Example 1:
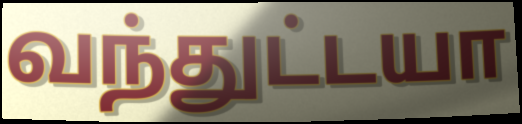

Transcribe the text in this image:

வந்துட்டயா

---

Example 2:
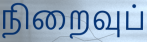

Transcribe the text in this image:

நிறைவுப்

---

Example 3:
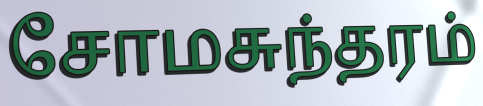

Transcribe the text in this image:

சோமசுந்தரம்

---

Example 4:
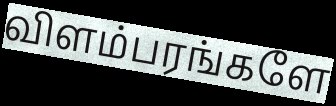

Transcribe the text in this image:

விளம்பரங்களே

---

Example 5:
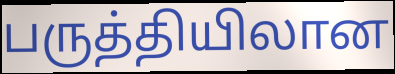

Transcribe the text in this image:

பருத்தியிலான